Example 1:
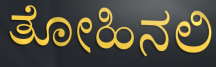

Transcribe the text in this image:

ತೋಹಿನಲಿ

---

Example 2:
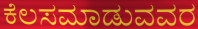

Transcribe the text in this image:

ಕೆಲಸಮಾಡುವವರ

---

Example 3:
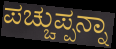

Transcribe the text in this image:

ಪಚ್ಚುಪ್ಪನ್ನಾ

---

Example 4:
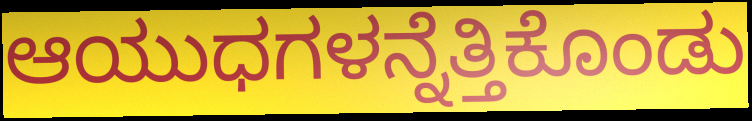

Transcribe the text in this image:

ಆಯುಧಗಳನ್ನೆತ್ತಿಕೊಂಡು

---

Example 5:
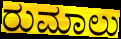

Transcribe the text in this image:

ರುಮಾಲು